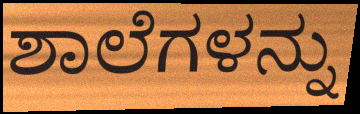
ಶಾಲೆಗಳನ್ನು